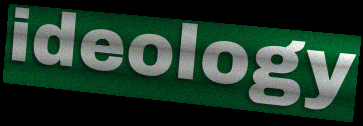
ideology